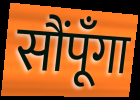
सौंपूँगा